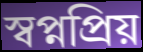
স্বপ্নপ্রিয়